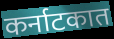
कर्नाटकात